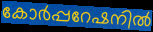
കോർപ്പറേഷനിൽ